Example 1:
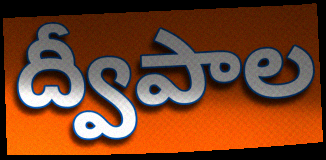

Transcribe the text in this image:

ద్వీపాల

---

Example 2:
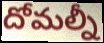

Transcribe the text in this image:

దోమల్నీ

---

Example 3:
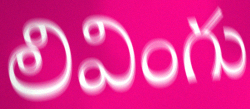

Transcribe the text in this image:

లివింగు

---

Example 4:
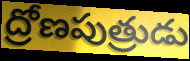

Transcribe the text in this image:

ద్రోణపుత్రుడు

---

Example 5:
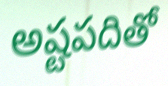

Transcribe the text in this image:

అష్టపదితో